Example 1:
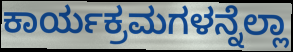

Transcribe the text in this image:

ಕಾರ್ಯಕ್ರಮಗಳನ್ನೆಲ್ಲಾ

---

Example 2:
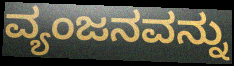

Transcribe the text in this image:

ವ್ಯಂಜನವನ್ನು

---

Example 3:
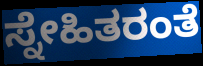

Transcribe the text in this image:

ಸ್ನೇಹಿತರಂತೆ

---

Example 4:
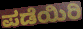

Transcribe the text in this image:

ಪಡೆಯಿರಿ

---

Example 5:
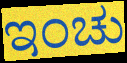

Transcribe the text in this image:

ಇಂಚು